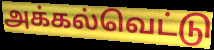
அக்கல்வெட்டு